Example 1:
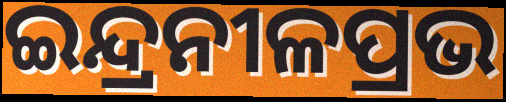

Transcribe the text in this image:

ଇନ୍ଦ୍ରନୀଳପ୍ରଭ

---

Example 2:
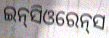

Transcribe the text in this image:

ଇନ୍‌ସିଓରେନ୍‌ସ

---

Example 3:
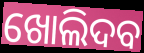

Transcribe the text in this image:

ଖୋଲିଦବ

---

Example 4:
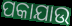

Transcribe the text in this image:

ପକାଯାଉ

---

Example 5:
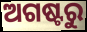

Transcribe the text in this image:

ଅଗଷ୍ଟରୁ